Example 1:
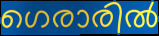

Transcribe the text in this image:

ഗെരാരിൽ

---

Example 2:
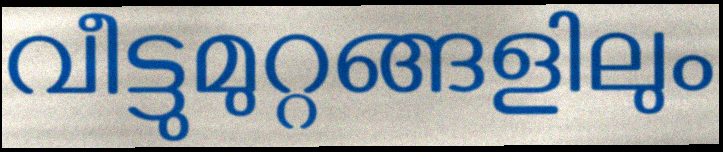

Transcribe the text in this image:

വീട്ടുമുറ്റങ്ങളിലും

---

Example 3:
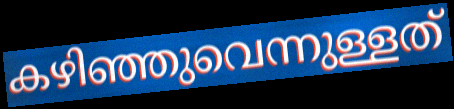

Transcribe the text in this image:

കഴിഞ്ഞുവെന്നുള്ളത്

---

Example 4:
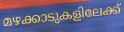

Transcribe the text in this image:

മഴക്കാടുകളിലേക്ക്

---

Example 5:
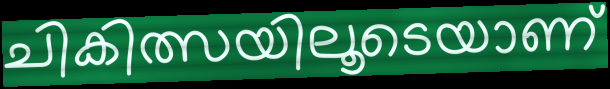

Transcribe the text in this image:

ചികിത്സയിലൂടെയാണ്